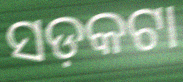
ସଡ଼କଟା